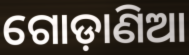
ଗୋଡ଼ାଣିଆ